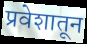
प्रवेशातून